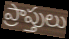
ప్రాప్తులు